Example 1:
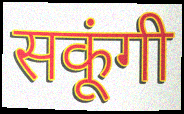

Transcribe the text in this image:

सकूंगी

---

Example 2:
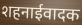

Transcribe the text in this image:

शहनाईवादक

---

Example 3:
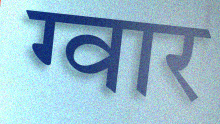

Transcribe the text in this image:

ग्वार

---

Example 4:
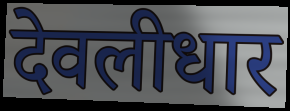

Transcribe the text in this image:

देवलीधार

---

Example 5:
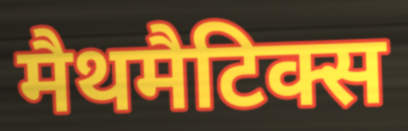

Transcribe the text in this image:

मैथमैटिक्स